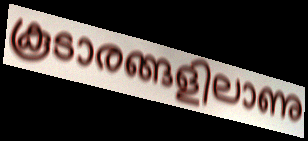
കൂടാരങ്ങളിലാണു